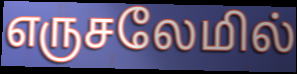
எருசலேமில்